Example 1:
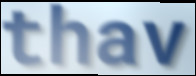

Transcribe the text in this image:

thav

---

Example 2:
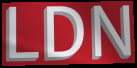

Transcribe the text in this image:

LDN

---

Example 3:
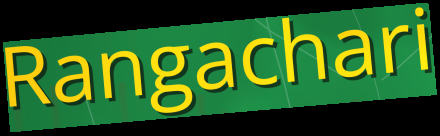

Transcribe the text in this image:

Rangachari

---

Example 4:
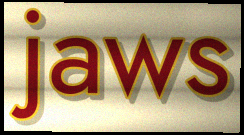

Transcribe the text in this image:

jaws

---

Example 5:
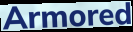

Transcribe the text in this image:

Armored